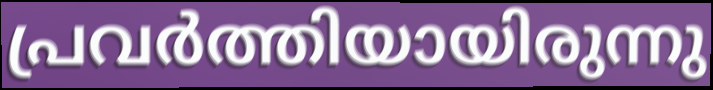
പ്രവർത്തിയായിരുന്നു